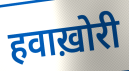
हवाख़ोरी